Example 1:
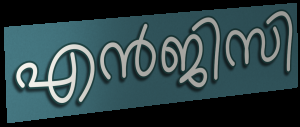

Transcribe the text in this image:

എൻജിസി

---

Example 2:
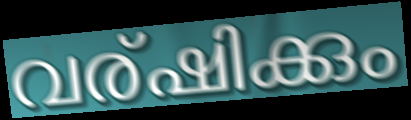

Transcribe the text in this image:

വര്ഷിക്കും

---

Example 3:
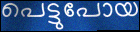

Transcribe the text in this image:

പെട്ടുപോയ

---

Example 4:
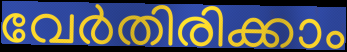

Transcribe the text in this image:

വേർതിരിക്കാം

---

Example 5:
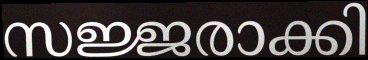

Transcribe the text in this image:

സജ്ജരാക്കി